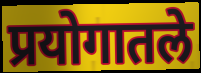
प्रयोगातले